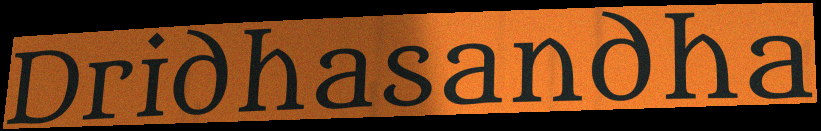
Dridhasandha